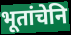
भूतांचेनि